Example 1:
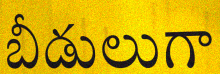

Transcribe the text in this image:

బీడులుగా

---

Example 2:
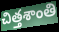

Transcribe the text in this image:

చిత్తశాంతి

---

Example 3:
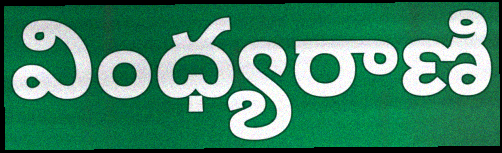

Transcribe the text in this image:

వింధ్యరాణి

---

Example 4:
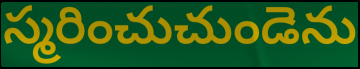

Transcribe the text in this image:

స్మరించుచుండెను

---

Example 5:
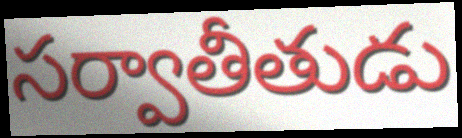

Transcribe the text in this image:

సర్వాతీతుడు